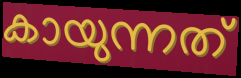
കായുന്നത്